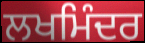
ਲਖਮਿੰਦਰ